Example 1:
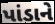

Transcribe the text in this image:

પાંડાને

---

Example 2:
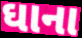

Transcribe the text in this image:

ઘાના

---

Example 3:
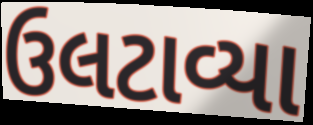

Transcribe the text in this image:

ઉલટાવ્યા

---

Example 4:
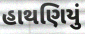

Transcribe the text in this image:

હાથણિયું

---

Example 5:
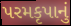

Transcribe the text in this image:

પરમકૃપાનું